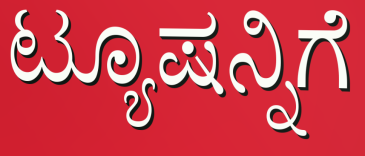
ಟ್ಯೂಷನ್ನಿಗೆ